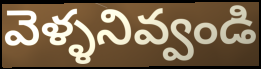
వెళ్ళనివ్వండి